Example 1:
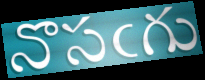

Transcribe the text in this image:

నొసఁగు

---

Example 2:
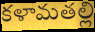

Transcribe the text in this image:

కళామతల్లి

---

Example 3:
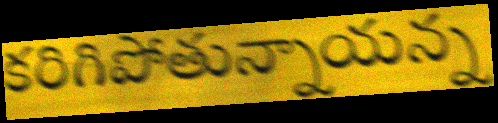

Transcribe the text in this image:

కరిగిపోతున్నాయన్న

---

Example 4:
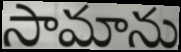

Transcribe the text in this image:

సామాను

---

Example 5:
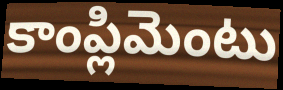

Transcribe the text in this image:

కాంప్లిమెంటు